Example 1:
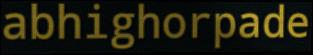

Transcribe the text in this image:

abhighorpade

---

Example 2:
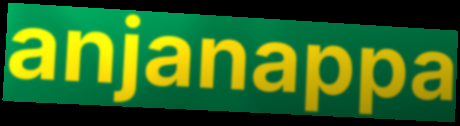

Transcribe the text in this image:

anjanappa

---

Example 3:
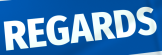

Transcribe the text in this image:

REGARDS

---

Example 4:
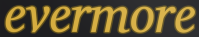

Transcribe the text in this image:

evermore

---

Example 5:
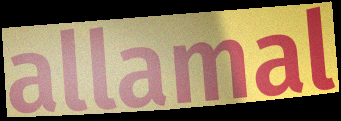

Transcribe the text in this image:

allamal